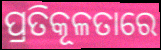
ପ୍ରତିକୂଳତାରେ